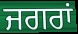
ਜਗਰਾਂ